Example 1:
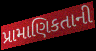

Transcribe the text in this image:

પ્રામાણિકતાની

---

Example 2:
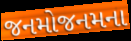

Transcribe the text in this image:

જનમોજનમના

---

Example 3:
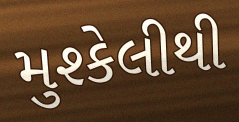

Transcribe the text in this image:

મુશ્કેલીથી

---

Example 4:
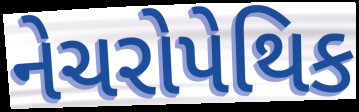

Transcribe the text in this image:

નેચરોપેથિક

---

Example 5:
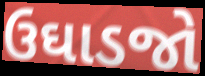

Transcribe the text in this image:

ઉઘાડજો